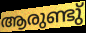
ആരുണ്ടു്